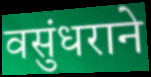
वसुंधराने